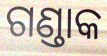
ଗଣ୍ଡାକ